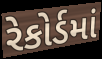
રેકોર્ડમાં